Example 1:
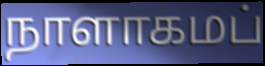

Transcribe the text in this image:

நாளாகமப்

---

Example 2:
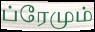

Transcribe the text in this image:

ப்ரேமும்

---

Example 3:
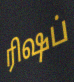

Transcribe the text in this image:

ரிஷப்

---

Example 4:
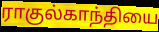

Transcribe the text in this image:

ராகுல்காந்தியை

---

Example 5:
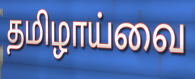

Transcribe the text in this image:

தமிழாய்வை